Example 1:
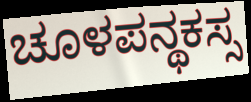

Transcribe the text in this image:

ಚೂಳಪನ್ಥಕಸ್ಸ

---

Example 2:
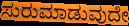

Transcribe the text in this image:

ಸುರುಮಾಡುವುದೇ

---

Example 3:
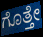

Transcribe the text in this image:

ಗೊತ್ತೇ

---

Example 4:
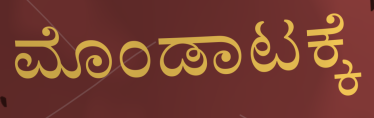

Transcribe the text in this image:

ಮೊಂಡಾಟಕ್ಕೆ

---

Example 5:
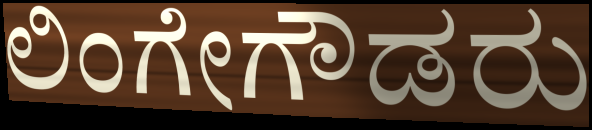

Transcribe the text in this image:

ಲಿಂಗೇಗೌಡರು